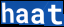
haat